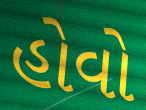
હોવો